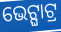
ଭେଟ୍ଘାଟ୍ର